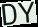
DY